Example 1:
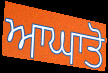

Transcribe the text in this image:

ਆਘਾਤੋ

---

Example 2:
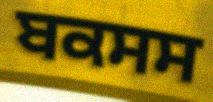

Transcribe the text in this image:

ਬਕਸਸ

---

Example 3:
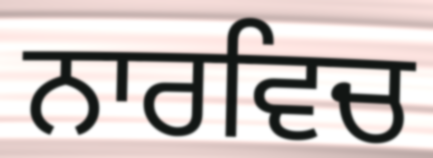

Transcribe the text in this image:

ਨਾਰਵਿਚ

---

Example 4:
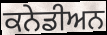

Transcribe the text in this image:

ਕਨੇਡੀਅਨ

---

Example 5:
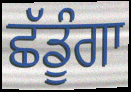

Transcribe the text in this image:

ਛੱਡੂੰਗਾ